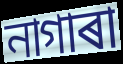
নাগাৰা